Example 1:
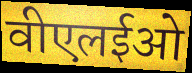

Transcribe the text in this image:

वीएलईओ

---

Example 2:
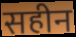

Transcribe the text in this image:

सहीन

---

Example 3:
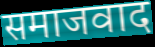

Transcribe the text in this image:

समाजवाद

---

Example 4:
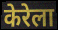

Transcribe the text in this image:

केरेला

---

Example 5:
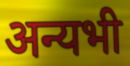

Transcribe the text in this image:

अन्यभी